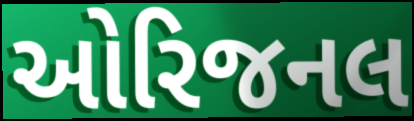
ઓરિજનલ